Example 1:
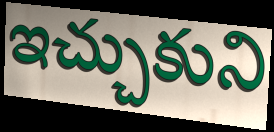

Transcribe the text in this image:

ఇచ్చుకుని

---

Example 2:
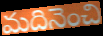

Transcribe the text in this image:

మదినెంచి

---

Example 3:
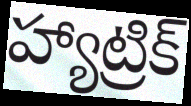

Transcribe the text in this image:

హ్యాట్రిక్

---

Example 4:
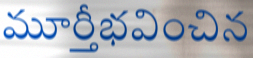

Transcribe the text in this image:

మూర్తీభవించిన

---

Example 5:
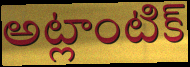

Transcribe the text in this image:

అట్లాంటిక్